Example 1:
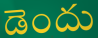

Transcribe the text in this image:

డెందు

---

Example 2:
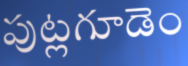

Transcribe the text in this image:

పుట్లగూడెం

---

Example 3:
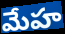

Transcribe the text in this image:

మేహ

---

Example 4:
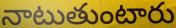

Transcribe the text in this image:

నాటుతుంటారు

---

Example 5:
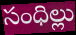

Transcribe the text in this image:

సంధిల్లు